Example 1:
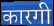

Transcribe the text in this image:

कारगी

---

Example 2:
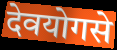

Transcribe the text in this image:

देवयोगसे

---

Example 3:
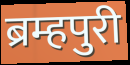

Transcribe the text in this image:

ब्रम्हपुरी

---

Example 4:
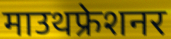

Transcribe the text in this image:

माउथफ्रेशनर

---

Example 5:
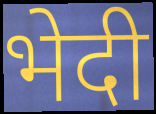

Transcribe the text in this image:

भेदी